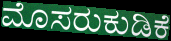
ಮೊಸರುಕುಡಿಕೆ